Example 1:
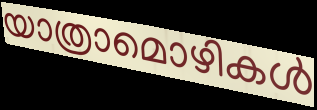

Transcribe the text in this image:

യാത്രാമൊഴികൾ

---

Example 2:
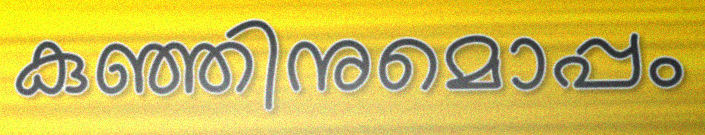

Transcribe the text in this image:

കുഞ്ഞിനുമൊപ്പം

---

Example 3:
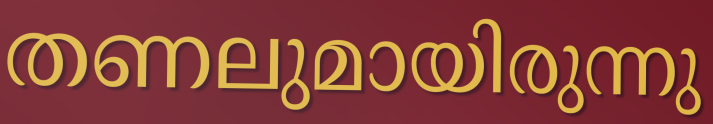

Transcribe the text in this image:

തണലുമായിരുന്നു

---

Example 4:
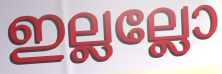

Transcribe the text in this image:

ഇല്ലല്ലോ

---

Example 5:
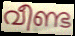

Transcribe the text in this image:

വീണ്ട